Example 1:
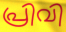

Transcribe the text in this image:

പ്രിവി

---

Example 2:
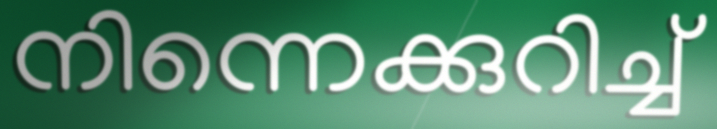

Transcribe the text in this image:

നിന്നെക്കുറിച്ച്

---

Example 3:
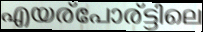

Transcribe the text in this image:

എയര്പോര്ട്ടിലെ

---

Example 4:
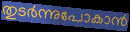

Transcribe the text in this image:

തുടർന്നുപോകാൻ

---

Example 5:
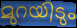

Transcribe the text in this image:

മുറയിടും